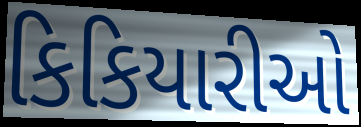
કિકિયારીઓ